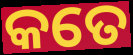
କତେ